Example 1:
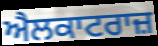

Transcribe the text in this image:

ਐਲਕਾਟਰਾਜ਼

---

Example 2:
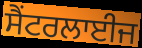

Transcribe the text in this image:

ਸੈਂਟਰਲਾਈਜ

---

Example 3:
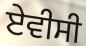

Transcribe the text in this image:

ਏਵੀਸੀ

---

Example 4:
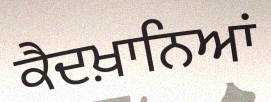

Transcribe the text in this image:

ਕੈਦਖ਼ਾਨਿਆਂ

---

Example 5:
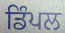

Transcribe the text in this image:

ਡਿੰਪਲ